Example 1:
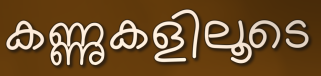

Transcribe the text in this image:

കണ്ണുകളിലൂടെ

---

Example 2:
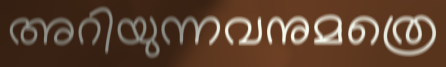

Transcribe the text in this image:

അറിയുന്നവനുമത്രെ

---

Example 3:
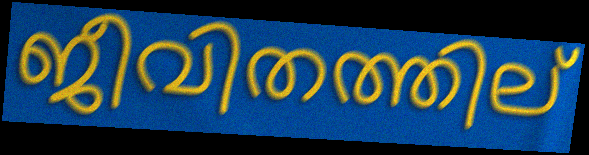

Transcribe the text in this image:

ജീവിതത്തില്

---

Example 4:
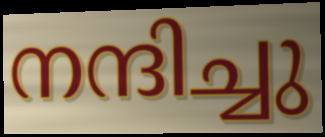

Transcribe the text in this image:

നന്ദിച്ചു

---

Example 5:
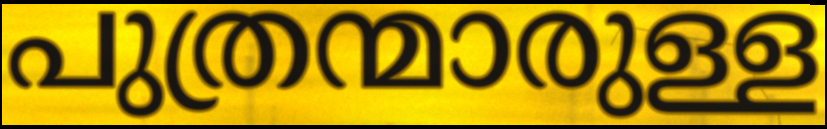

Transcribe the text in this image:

പുത്രന്മാരുള്ള